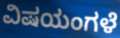
ವಿಷಯಂಗಳೆ